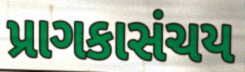
પ્રાગકાસંચય